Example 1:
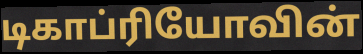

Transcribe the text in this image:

டிகாப்ரியோவின்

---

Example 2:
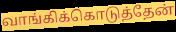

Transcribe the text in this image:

வாங்கிக்கொடுத்தேன்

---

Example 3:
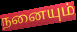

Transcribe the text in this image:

நனையும்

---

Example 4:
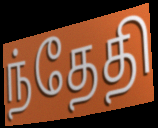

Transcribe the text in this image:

ந்தேதி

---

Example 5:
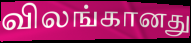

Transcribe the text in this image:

விலங்கானது